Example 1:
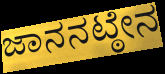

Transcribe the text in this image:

ಜಾನನಟ್ಠೇನ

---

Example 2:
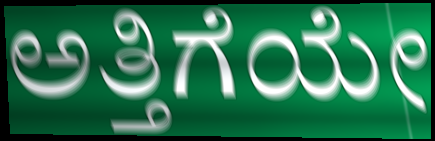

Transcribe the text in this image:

ಅತ್ತಿಗೆಯೇ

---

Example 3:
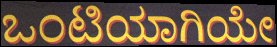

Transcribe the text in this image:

ಒಂಟಿಯಾಗಿಯೇ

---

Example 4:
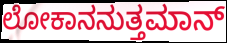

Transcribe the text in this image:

ಲೋಕಾನನುತ್ತಮಾನ್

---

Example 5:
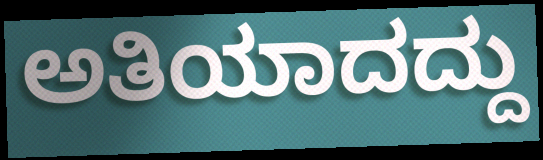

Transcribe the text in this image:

ಅತಿಯಾದದ್ದು